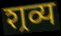
श्रव्य